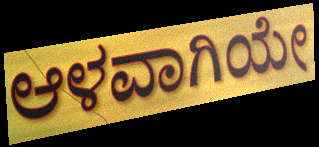
ಆಳವಾಗಿಯೇ